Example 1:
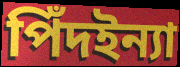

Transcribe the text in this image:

পিঁদইন্যা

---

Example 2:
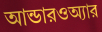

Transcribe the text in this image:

আন্ডারওঅ্যার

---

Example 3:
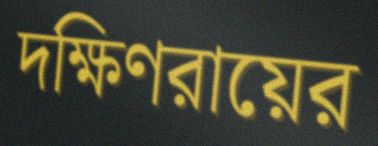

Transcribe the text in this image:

দক্ষিণরায়ের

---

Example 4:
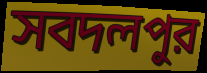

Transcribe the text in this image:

সবদলপুর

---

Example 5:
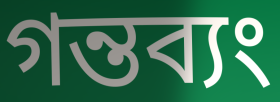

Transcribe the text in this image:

গন্তব্যং